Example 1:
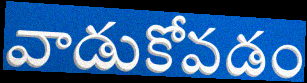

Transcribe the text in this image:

వాడుకోవడం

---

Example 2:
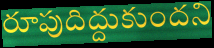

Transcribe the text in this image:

రూపుదిద్దుకుందని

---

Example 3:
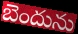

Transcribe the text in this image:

బెందును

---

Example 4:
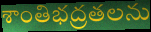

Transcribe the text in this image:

శాంతిభద్రతలను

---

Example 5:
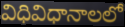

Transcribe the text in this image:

విధివిధానాలలో